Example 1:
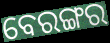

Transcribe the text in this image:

ବେରଙ୍ଗର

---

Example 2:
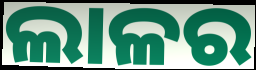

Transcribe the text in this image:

ଲାଳର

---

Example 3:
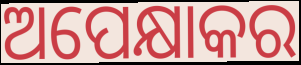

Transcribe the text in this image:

ଅପେକ୍ଷାକର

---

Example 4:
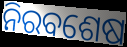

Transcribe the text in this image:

ନିରବଶେଷ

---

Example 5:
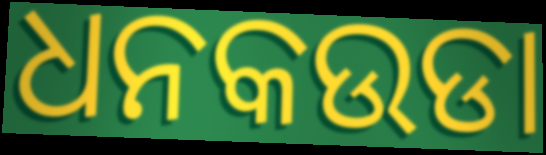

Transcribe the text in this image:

ଧନକଉଡା